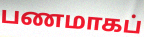
பணமாகப்